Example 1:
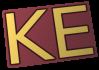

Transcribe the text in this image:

KE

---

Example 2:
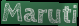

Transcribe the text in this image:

Maruti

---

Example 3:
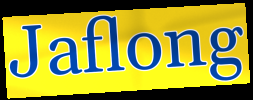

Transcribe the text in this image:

Jaflong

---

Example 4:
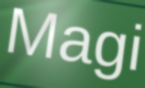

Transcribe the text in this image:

Magi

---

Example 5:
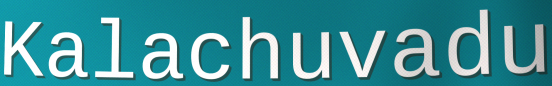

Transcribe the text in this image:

Kalachuvadu